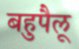
बहुपैलू